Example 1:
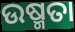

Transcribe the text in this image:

ଉଷ୍ମତା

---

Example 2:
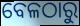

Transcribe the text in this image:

ବେଳଠାରୁ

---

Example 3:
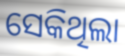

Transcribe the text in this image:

ସେକିଥିଲା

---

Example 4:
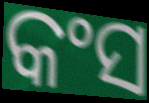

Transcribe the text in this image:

କଂସ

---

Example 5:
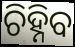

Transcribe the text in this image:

ଚିହ୍ନିବ